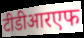
टीडीआरएफ